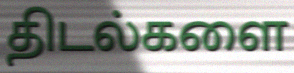
திடல்களை